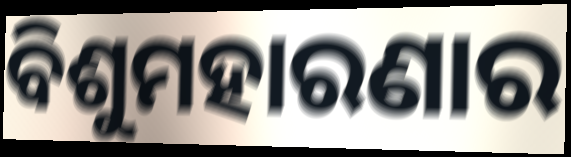
ବିଶୁମହାରଣାର